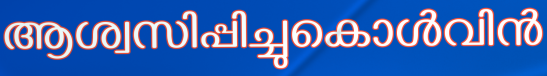
ആശ്വസിപ്പിച്ചുകൊൾവിൻ